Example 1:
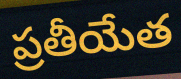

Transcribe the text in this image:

ప్రతీయేత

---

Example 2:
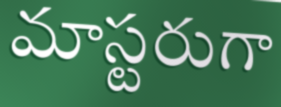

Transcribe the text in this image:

మాస్టరుగా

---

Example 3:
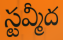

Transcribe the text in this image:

స్టవ్మీద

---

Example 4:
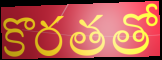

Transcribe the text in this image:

కొరతతో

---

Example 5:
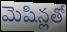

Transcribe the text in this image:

మెషిన్లతో